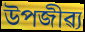
উপজীৱ্য